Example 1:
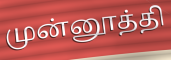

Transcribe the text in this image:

முன்னூத்தி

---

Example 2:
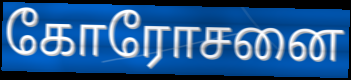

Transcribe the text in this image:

கோரோசனை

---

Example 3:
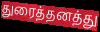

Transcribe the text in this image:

துரைத்தனத்து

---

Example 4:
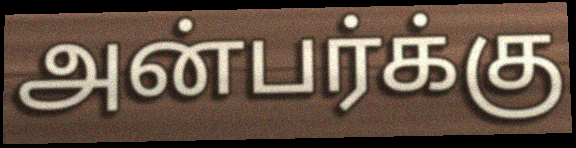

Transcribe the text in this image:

அன்பர்க்கு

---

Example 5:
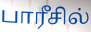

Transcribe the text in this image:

பாரீசில்